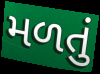
મળતું